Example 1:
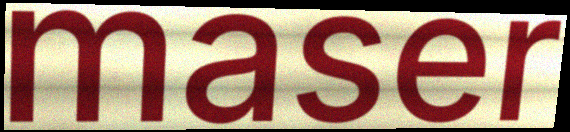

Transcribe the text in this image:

maser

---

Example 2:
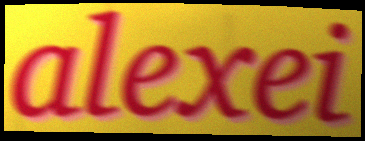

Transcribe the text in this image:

alexei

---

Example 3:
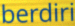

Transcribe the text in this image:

berdiri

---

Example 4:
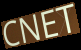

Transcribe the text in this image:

CNET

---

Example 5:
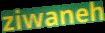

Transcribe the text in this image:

ziwaneh